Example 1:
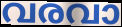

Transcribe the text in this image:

വരവാ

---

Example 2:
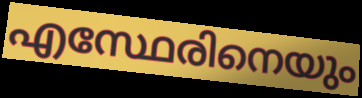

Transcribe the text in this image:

എസ്ഥേരിനെയും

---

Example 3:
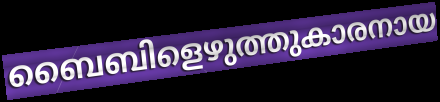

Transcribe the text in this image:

ബൈബിളെഴുത്തുകാരനായ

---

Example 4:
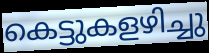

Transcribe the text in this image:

കെട്ടുകളഴിച്ചു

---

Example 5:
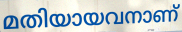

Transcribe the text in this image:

മതിയായവനാണ്